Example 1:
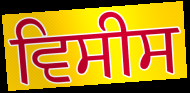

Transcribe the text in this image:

ਵਿਸੀਸ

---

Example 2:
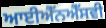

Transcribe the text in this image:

ਆਈਐੱਨਐੱਸਵੀ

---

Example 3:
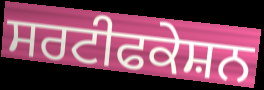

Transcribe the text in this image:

ਸਰਟੀਫਕੇਸ਼ਨ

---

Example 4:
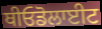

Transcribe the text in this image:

ਥੀਓਡੋਲਾਈਟ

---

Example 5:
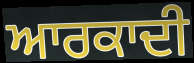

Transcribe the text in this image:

ਆਰਕਾਦੀ